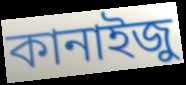
কানাইজু